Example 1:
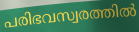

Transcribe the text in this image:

പരിഭവസ്വരത്തിൽ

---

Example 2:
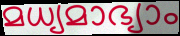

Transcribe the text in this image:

മധ്യമാഭ്യാം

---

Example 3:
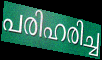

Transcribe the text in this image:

പരിഹരിച്ച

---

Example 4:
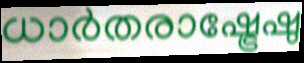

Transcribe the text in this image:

ധാർതരാഷ്ട്രേഷു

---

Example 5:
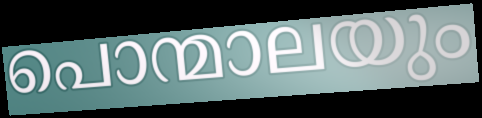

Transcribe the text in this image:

പൊന്മാലയും